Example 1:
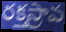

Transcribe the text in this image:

రక్తస్రావ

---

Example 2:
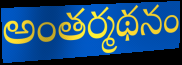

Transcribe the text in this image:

అంతర్మథనం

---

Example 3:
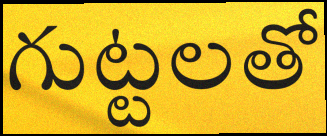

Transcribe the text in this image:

గుట్టలతో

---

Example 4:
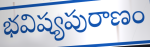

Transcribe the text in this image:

భవిష్యపురాణం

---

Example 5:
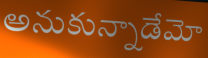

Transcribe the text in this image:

అనుకున్నాడేమో